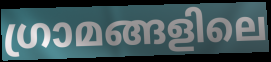
ഗ്രാമങ്ങളിലെ